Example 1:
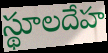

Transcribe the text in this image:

స్థూలదేహ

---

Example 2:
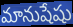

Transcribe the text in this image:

మానుషేషు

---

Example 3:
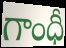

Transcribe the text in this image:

గాంధీ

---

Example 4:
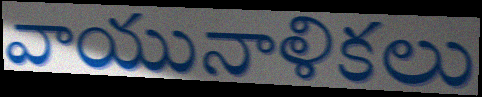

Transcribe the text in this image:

వాయునాళికలు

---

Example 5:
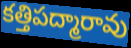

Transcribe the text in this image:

కత్తిపద్మారావు